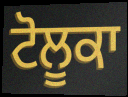
ਟੋਲੂਕਾ